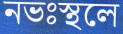
নভঃস্থলে